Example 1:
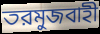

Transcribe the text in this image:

তরমুজবাহী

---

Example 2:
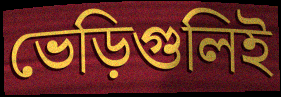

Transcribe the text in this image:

ভেড়িগুলিই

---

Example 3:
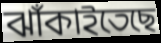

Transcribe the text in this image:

ঝাঁকাইতেছে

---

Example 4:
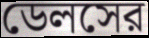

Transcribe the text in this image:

ডেলসের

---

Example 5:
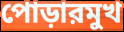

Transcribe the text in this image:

পোড়ারমুখ